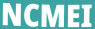
NCMEI